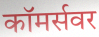
कॉमर्सवर